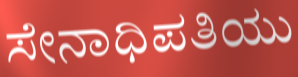
ಸೇನಾಧಿಪತಿಯು